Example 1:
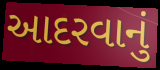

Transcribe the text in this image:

આદરવાનું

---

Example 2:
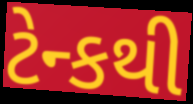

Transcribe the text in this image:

ટેન્કથી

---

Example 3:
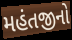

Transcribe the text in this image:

મહંતજીનો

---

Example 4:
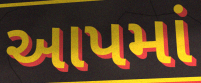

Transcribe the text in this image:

આપમાં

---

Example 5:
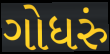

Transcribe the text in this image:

ગોધરું